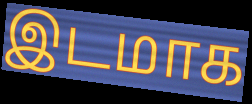
இடமாக